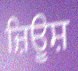
ਜ਼ਿਊਸ਼